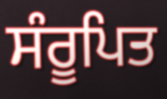
ਸੰਰੂਪਿਤ